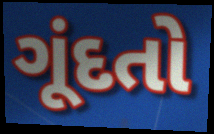
ગૂંદતો